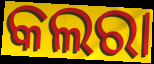
କଲରା